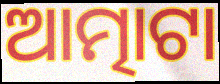
ଆତ୍ମାଟା